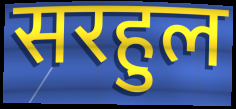
सरहुल